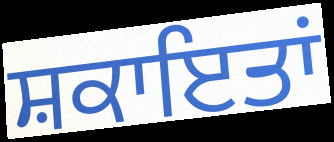
ਸ਼ਕਾਇਤਾਂ